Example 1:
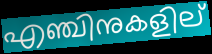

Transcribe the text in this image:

എഞ്ചിനുകളില്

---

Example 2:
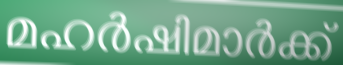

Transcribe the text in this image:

മഹർഷിമാർക്ക്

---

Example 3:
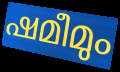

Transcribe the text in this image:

ഷമീമും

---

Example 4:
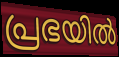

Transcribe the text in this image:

പ്രഭയിൽ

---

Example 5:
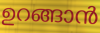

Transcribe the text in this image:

ഉറങ്ങാൻ